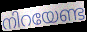
നിറയേണ്ട